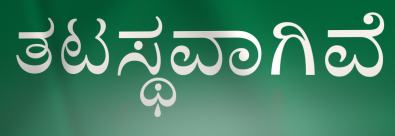
ತಟಸ್ಥವಾಗಿವೆ